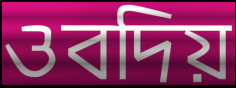
ওবদিয়